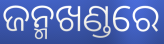
ଜନ୍ମଖଣ୍ଡରେ